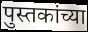
पुस्तकांच्या